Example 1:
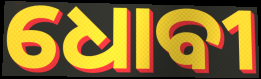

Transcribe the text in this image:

ଧୋବୀ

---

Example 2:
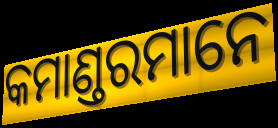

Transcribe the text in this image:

କମାଣ୍ଡରମାନେ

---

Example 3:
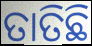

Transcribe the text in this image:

ତାତିଛି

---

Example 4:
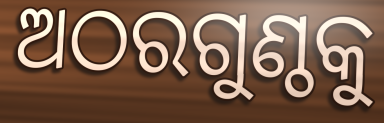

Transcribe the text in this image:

ଅଠରଗୁଣ୍ଠକୁ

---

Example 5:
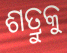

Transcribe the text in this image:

ଶତ୍ରୁକୁ